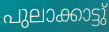
പുലാക്കാട്ടു്